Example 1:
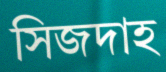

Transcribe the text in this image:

সিজদাহ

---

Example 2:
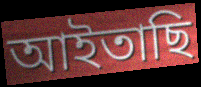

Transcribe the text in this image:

আইতাছি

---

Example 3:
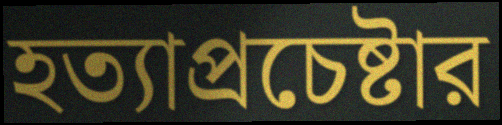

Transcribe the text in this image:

হত্যাপ্রচেষ্টার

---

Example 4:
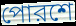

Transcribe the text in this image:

পোরশে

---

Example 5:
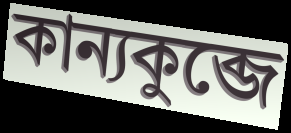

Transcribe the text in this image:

কান্যকুব্জে